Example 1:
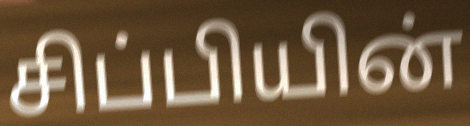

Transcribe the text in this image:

சிப்பியின்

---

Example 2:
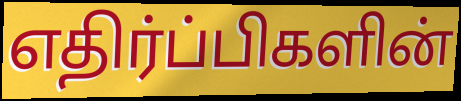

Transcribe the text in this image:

எதிர்ப்பிகளின்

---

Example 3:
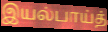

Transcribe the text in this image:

இயல்பாய்த்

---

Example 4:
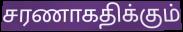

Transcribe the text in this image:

சரணாகதிக்கும்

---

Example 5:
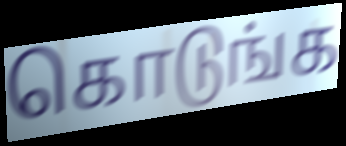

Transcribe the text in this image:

கொடுங்க